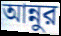
আন্নুর